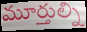
మూర్తుల్ని